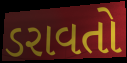
ડરાવતો